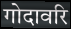
गोदावरि